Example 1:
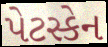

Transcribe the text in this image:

પેટસ્કેન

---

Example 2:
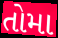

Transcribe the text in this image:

તોમા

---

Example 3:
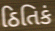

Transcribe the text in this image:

ઠિતિકં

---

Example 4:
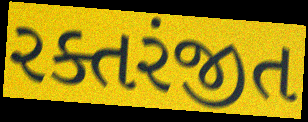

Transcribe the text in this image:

રક્તરંજીત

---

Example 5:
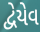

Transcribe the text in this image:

દ્વેયેવ